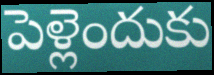
పెళ్లెందుకు